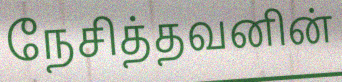
நேசித்தவனின்